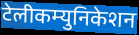
टेलीकम्युनिकेशन